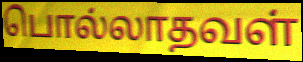
பொல்லாதவள்